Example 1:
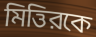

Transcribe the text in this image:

মিত্তিরকে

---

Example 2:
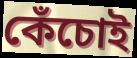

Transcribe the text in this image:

কেঁচোই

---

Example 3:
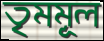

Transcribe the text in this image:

তৃমমূল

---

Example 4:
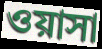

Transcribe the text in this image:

ওয়াসা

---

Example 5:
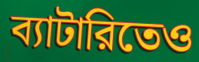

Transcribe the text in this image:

ব্যাটারিতেও